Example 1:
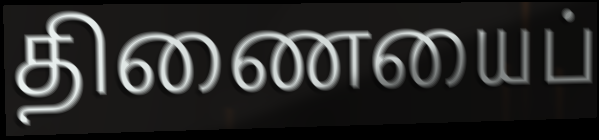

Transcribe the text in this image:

திணையைப்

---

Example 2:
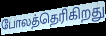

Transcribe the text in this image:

போலத்தெரிகிறது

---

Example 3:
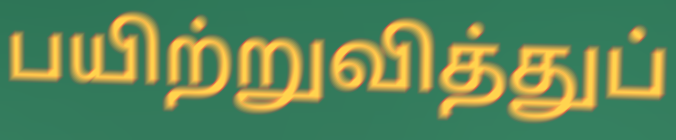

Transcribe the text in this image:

பயிற்றுவித்துப்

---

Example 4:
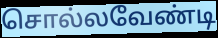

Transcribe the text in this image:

சொல்லவேண்டி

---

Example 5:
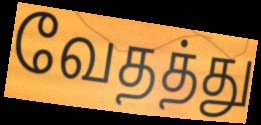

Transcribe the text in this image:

வேதத்து